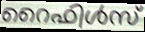
റൈഫിൾസ്